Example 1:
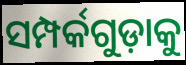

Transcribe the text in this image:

ସମ୍ପର୍କଗୁଡ଼ାକୁ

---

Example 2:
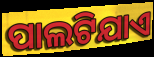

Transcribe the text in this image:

ପାଲଟିଯାଏ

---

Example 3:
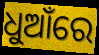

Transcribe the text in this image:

ଧୁଆଁରେ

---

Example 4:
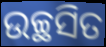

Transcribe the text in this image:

ଉଚ୍ଛସିତ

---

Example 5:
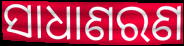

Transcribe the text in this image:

ସାଧାଣରଣ